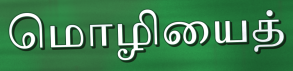
மொழியைத்